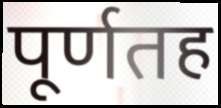
पूर्णतह